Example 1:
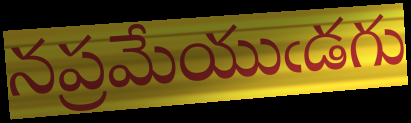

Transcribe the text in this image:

నప్రమేయుఁడగు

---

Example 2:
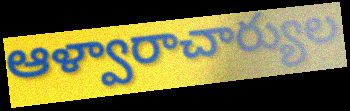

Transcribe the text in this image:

ఆళ్వారాచార్యుల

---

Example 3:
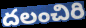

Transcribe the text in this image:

దలంచిరి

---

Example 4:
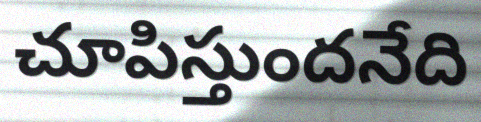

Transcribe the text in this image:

చూపిస్తుందనేది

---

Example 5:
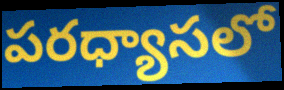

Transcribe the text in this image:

పరధ్యాసలో